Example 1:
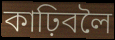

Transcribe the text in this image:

কাঢ়িবলৈ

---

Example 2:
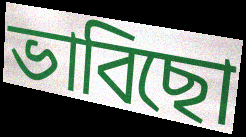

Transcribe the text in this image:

ভাবিছো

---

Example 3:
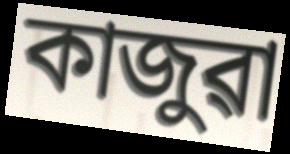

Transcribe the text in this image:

কাজুৱা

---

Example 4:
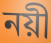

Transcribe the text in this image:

নয়ী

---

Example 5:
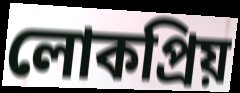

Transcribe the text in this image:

লোকপ্ৰিয়